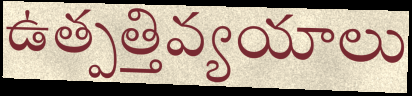
ఉత్పత్తివ్యయాలు